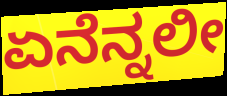
ಏನೆನ್ನಲೀ